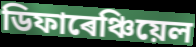
ডিফাৰেঞ্চিয়েল